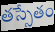
తస్సేతం